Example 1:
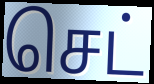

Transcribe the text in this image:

செட்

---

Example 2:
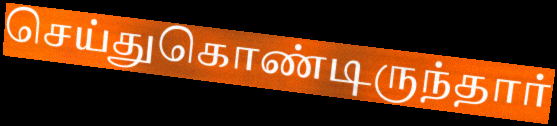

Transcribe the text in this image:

செய்துகொண்டிருந்தார்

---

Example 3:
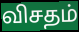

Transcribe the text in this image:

விசதம்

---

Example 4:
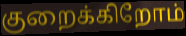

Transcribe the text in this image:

குறைக்கிறோம்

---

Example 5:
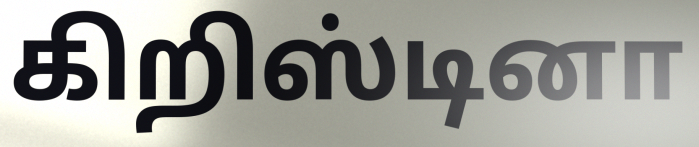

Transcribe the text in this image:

கிறிஸ்டினா